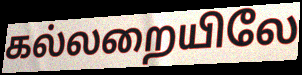
கல்லறையிலே